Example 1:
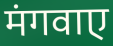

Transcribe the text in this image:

मंगवाए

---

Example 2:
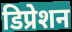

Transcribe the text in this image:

डिप्रेशन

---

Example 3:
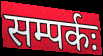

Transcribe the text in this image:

सम्पर्कः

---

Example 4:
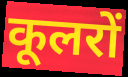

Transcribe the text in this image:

कूलरों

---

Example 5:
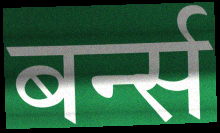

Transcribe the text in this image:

बर्न्स